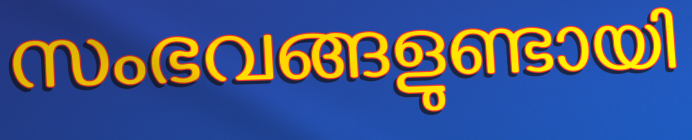
സംഭവങ്ങളുണ്ടായി